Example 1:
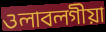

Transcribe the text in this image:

ওলাবলগীয়া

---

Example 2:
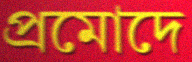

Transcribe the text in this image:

প্ৰমোদে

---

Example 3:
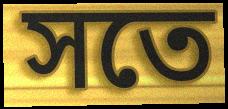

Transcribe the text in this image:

সতে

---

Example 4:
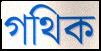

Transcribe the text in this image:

গথিক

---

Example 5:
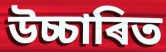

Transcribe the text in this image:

উচ্চাৰিত